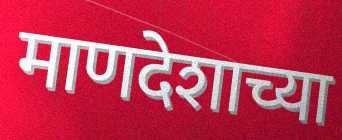
माणदेशाच्या